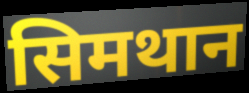
सिमथान